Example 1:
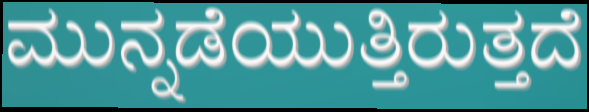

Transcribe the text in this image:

ಮುನ್ನಡೆಯುತ್ತಿರುತ್ತದೆ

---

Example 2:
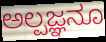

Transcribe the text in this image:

ಅಲ್ಪಜ್ಞನೂ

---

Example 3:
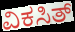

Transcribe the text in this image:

ವಿಕಸಿತ್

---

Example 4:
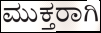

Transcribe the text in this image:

ಮುಕ್ತರಾಗಿ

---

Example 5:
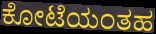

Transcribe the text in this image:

ಕೋಟೆಯಂತಹ